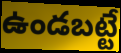
ఉండబట్టే